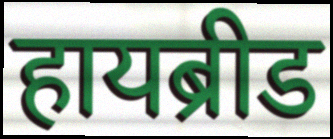
हायब्रीड